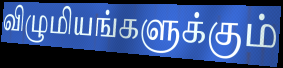
விழுமியங்களுக்கும்